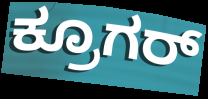
ಕ್ರೂಗರ್